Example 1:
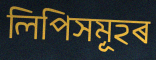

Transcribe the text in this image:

লিপিসমূহৰ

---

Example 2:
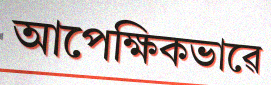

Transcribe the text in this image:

আপেক্ষিকভাৱে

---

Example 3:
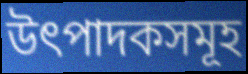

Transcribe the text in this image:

উৎপাদকসমূহ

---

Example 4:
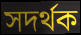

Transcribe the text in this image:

সদৰ্থক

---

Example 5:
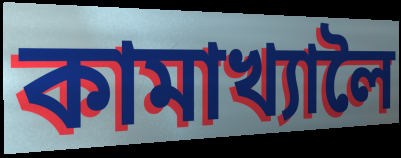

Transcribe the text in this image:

কামাখ্যালৈ